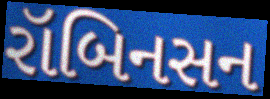
રૉબિનસન